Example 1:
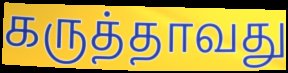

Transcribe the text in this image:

கருத்தாவது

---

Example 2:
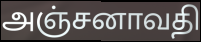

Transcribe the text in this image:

அஞ்சனாவதி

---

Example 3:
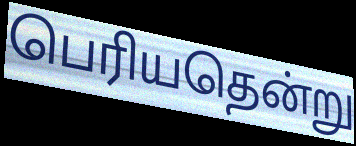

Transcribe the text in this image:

பெரியதென்று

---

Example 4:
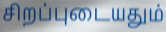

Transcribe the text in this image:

சிறப்புடையதும்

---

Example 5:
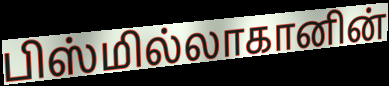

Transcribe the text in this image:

பிஸ்மில்லாகானின்